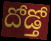
దోడ్తో